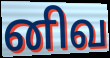
னிவ